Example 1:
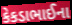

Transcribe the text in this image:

કેકડાભાઈના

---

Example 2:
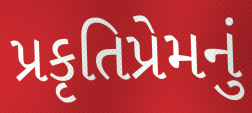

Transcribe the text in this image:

પ્રકૃતિપ્રેમનું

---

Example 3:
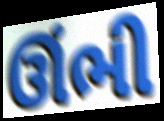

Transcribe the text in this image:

ઊંભી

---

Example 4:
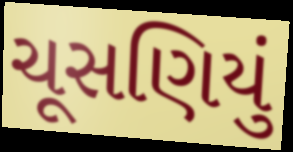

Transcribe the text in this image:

ચૂસણિયું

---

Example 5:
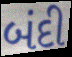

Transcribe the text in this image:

બંદી